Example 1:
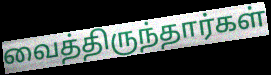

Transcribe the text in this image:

வைத்திருந்தார்கள்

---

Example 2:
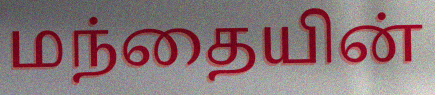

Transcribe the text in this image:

மந்தையின்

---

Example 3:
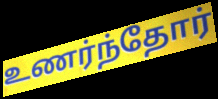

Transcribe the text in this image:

உணர்ந்தோர்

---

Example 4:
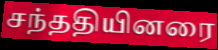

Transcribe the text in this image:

சந்ததியினரை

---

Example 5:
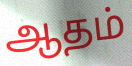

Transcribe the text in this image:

ஆதம்